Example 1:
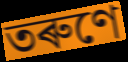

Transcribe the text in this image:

তৰুণে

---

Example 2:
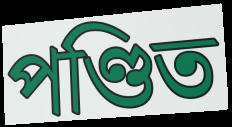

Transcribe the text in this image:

পণ্ডিত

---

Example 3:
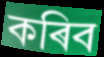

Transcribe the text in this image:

কৰিব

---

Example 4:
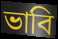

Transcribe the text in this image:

ভাবি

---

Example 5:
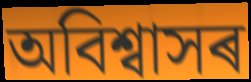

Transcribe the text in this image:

অবিশ্বাসৰ